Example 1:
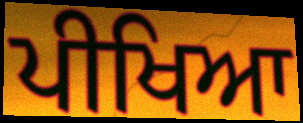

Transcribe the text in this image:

ਪੀਖਿਆ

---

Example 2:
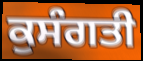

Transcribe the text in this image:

ਕੁਸੰਗਤੀ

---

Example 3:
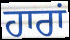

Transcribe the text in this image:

ਹਾਰਾਂ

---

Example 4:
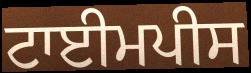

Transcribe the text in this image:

ਟਾਈਮਪੀਸ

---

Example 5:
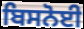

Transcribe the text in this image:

ਬਿਸਨੋਈ